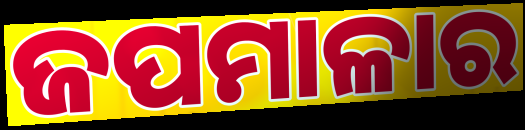
ଜପମାଳାର